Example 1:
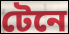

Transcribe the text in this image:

টেনে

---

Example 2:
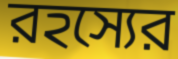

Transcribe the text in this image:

রহস্যের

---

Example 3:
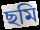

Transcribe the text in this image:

ছমি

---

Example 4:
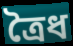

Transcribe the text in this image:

ত্রৈধ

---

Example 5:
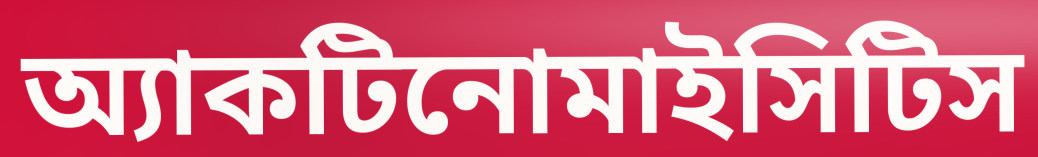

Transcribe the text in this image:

অ্যাকটিনোমাইসিটিস